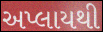
અપ્લાયથી